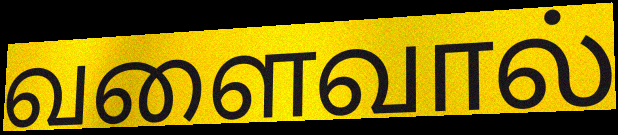
வளைவால்